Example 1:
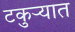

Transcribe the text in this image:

टकुऱ्यात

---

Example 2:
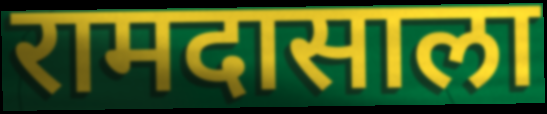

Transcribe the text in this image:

रामदासाला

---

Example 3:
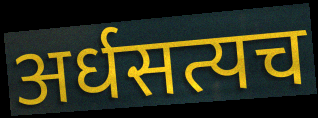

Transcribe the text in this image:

अर्धसत्यच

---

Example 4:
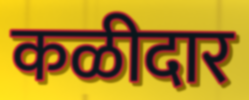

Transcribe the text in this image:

कळीदार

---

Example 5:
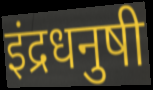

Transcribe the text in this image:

इंद्रधनुषी